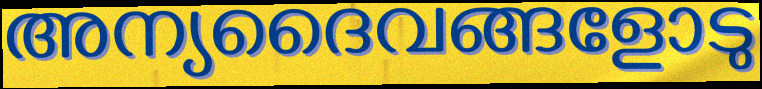
അന്യദൈവങ്ങളോടു